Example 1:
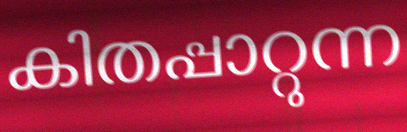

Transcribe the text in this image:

കിതപ്പാറ്റുന്ന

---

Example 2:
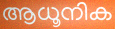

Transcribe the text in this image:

ആധൂനിക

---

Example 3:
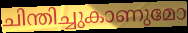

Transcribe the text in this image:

ചിന്തിച്ചുകാണുമോ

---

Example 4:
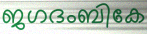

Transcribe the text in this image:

ജഗദംബികേ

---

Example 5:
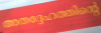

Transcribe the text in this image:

അതദ്ദേഹത്തിന്റെ